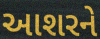
આશરને